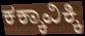
ಕಕ್ಕಾವಿಕ್ಕಿ